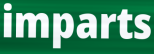
imparts